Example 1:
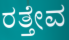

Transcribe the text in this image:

ರತ್ತೇವ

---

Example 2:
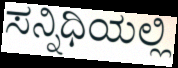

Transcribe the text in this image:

ಸನ್ನಿಧಿಯಲ್ಲಿ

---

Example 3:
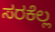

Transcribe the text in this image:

ಸರಕೆಲ್ಲ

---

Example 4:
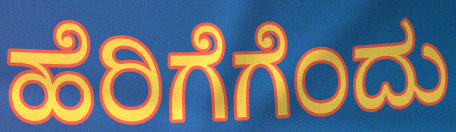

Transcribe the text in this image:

ಹೆರಿಗೆಗೆಂದು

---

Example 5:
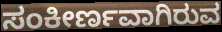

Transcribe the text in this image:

ಸಂಕೀರ್ಣವಾಗಿರುವ